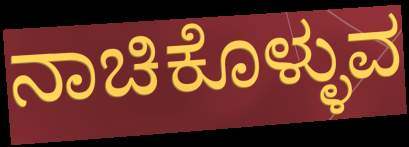
ನಾಚಿಕೊಳ್ಳುವ